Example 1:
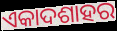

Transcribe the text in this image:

ଏକାଦଶାହର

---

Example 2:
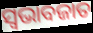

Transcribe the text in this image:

ସ୍ୱଭାବଜାତ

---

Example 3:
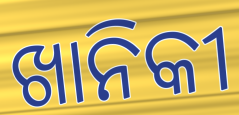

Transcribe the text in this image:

ଖାନିକୀ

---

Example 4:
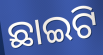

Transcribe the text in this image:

ଛାଇଟି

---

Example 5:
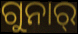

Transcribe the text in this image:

ଗୁନାର୍